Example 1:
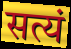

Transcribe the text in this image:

सत्यं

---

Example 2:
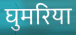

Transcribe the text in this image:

घुमरिया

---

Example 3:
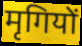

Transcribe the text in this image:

मृगियों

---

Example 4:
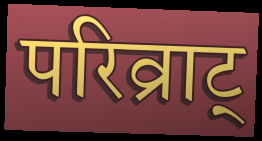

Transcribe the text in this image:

परिव्राट्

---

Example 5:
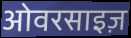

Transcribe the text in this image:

ओवरसाइज़